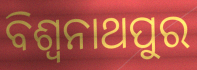
ବିଶ୍ଵନାଥପୁର